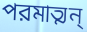
পরমাত্মন্